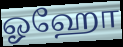
ஓஹோ